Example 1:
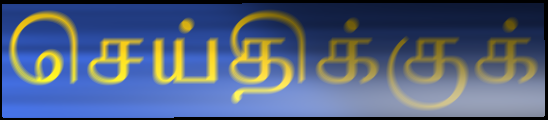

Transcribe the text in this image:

செய்திக்குக்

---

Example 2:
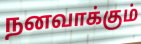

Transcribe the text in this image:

நனவாக்கும்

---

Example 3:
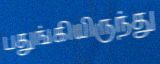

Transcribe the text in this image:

பதுங்கியிருந்து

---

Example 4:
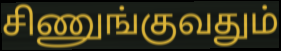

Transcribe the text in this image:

சிணுங்குவதும்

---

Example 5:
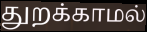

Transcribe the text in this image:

துறக்காமல்